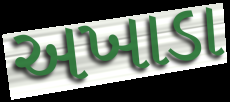
અખાડા